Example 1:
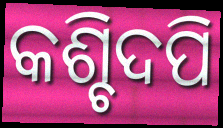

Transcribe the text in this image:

କଶ୍ଚିଦପି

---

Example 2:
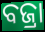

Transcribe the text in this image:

ବଜ୍ରା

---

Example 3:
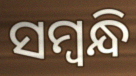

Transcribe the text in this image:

ସମ୍ବନ୍ଧି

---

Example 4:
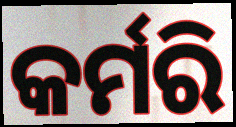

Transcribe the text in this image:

କର୍ମରି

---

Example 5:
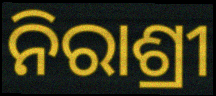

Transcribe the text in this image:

ନିରାଶ୍ରୀ